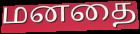
மனதை